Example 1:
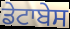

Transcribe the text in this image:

ਡੇਟਾਬੇਸ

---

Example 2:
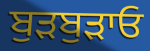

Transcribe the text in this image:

ਬੁੜਬੁੜਾਓ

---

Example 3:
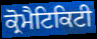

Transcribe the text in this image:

ਕ੍ਰੋਮੈਟਿਕਿਟੀ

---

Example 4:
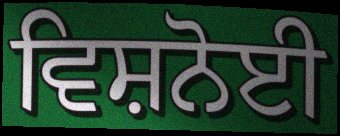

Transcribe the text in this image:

ਵਿਸ਼ਨੋਈ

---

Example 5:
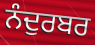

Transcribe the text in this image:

ਨੰਦੁਰਬਰ